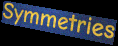
Symmetries